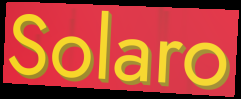
Solaro